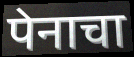
पेनाचा